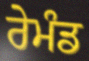
ਰੇਮੰਡ